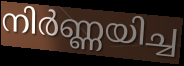
നിർണ്ണയിച്ച